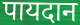
पायदान